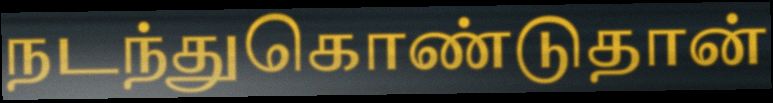
நடந்துகொண்டுதான்